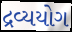
દ્રવ્યયોગ